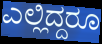
ಎಲ್ಲಿದ್ದರೂ